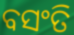
ବସଂତି